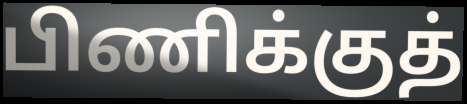
பிணிக்குத்